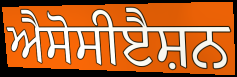
ਐਸੋਸੀੲੈਸ਼ਨ